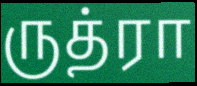
ருத்ரா